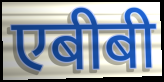
एबीबी